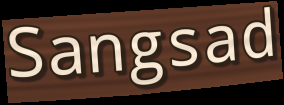
Sangsad